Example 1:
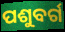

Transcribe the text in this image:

ପଶୁବର୍ଗ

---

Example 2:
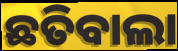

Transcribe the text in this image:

ଛତିବାଲା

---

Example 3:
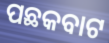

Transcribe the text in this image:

ପଛକବାଟ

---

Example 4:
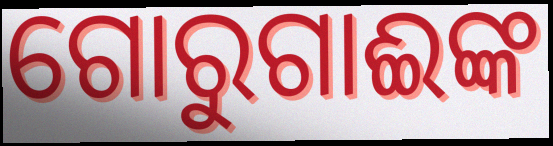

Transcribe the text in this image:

ଗୋରୁଗାଈଙ୍କ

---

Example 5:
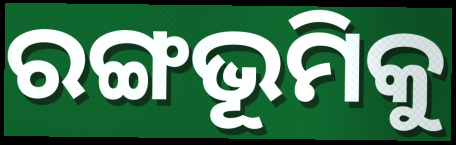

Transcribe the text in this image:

ରଙ୍ଗଭୂମିକୁ